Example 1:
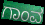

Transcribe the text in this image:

ಗಾಂವ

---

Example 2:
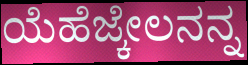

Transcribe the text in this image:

ಯೆಹೆಜ್ಕೇಲನನ್ನ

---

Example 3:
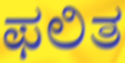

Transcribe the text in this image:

ಫಲಿತ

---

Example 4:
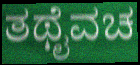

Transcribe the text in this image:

ತಥೈವಚ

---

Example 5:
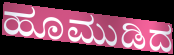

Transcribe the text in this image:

ಹೂಮುಡಿದ